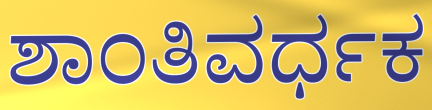
ಶಾಂತಿವರ್ಧಕ